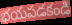
భయపడకండి